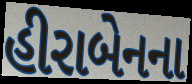
હીરાબેનના